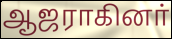
ஆஜராகினர்